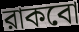
রাকবো